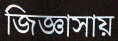
জিজ্ঞাসায়